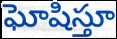
ఘోషిస్తూ